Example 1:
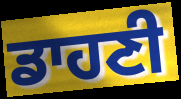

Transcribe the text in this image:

ਡਾਹਣੀ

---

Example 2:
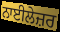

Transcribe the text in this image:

ਨਾਈਲੇਜ਼ਰ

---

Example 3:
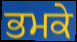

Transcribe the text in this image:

ਭਮਕੇ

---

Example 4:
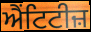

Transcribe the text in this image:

ਐਂਟਿਟੀਜ਼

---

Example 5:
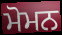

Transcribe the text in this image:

ਮੋਮਨ